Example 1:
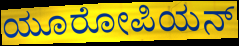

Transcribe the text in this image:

ಯೂರೋಪಿಯನ್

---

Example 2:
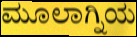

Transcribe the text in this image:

ಮೂಲಾಗ್ನಿಯ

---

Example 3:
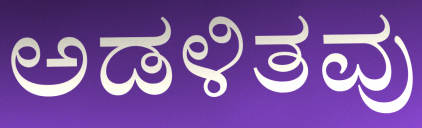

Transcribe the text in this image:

ಅಡಳಿತವು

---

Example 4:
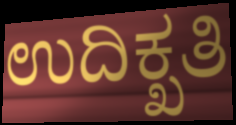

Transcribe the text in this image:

ಉದಿಕ್ಖತಿ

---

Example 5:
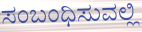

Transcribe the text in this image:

ಸಂಬಂಧಿಸುವಲ್ಲಿ